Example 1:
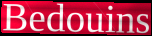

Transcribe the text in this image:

Bedouins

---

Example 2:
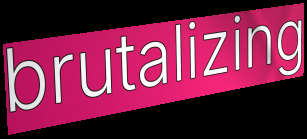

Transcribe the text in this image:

brutalizing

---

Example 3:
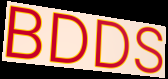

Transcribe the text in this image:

BDDS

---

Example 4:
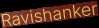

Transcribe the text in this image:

Ravishanker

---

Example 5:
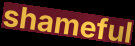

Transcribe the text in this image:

shameful